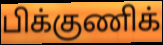
பிக்குணிக்